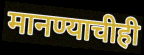
मानण्याचीही